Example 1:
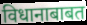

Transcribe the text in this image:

विधानाबाबत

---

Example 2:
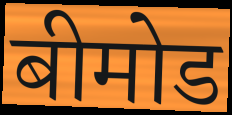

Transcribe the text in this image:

बीमोड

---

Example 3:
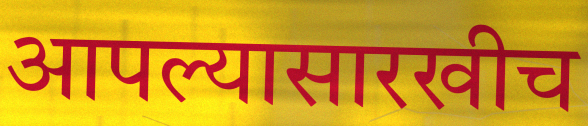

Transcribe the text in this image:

आपल्यासारखीच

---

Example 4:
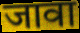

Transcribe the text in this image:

जावा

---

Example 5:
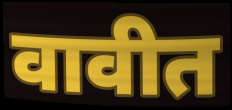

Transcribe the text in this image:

वावीत